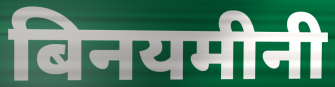
बिनयमीनी